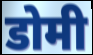
डोमी